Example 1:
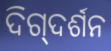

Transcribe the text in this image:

ଦିଗ୍‌ଦର୍ଶନ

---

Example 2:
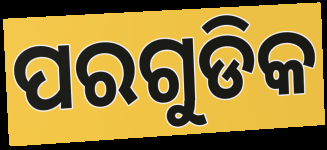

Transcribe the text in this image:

ପରଗୁଡିକ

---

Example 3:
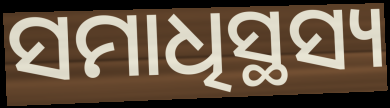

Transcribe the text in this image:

ସମାଧିସ୍ଥସ୍ୟ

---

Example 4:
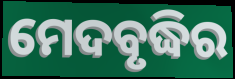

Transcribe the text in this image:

ମେଦବୃଦ୍ଧିର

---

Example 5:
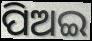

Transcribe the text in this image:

ପିଅଇ